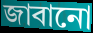
জাবানো